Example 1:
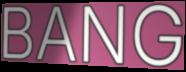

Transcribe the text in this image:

BANG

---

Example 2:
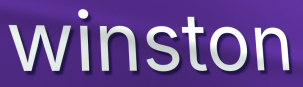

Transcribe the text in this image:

winston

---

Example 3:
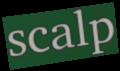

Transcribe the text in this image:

scalp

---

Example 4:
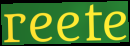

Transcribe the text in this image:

reete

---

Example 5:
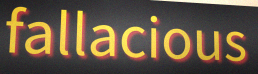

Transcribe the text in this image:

fallacious